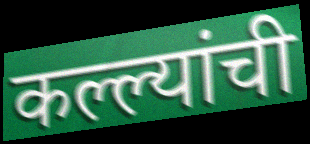
कल्ल्यांची